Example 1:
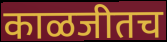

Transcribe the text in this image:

काळजीतच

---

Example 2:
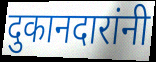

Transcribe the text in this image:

दुकानदारांनी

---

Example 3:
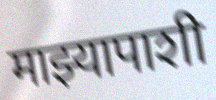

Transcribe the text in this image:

माझ्यापाशी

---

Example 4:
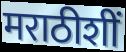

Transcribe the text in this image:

मराठीशीं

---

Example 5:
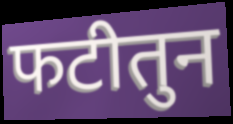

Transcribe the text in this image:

फटीतुन